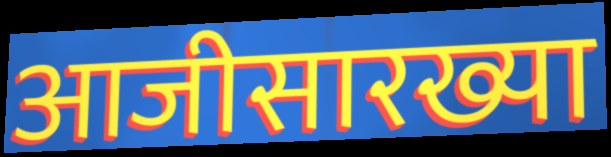
आजीसारख्या